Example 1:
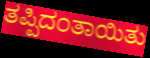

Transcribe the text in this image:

ತಪ್ಪಿದಂತಾಯಿತು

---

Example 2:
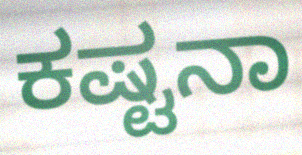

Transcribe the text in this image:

ಕಷ್ಟನಾ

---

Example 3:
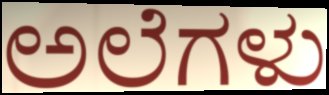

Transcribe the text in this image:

ಅಲೆಗಳು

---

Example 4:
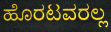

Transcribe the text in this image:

ಹೊರಟವರಲ್ಲ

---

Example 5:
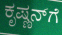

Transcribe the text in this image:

ಕೃಷ್ಣನ್‌ಗೆ